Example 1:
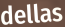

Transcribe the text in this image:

dellas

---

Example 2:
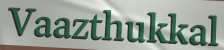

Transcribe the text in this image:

Vaazthukkal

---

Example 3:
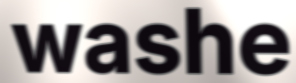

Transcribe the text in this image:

washe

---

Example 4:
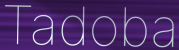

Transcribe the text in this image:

Tadoba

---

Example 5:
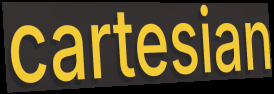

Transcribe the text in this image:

cartesian